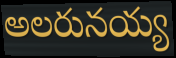
అలరునయ్య